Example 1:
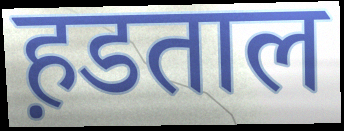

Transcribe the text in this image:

ह़डताल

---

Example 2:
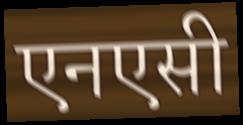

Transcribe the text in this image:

एनएसी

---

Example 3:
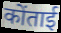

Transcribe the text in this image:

कोंताई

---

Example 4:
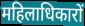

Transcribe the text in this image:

महिलाधिकारों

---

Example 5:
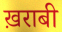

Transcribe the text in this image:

ख़राबी